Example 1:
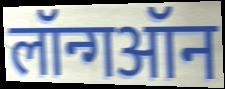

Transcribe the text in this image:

लॉन्गऑन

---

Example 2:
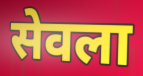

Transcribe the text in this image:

सेवला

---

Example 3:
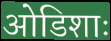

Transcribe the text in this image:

ओडिशाः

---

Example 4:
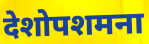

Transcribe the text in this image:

देशोपशमना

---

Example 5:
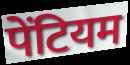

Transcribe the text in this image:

पेंटियम